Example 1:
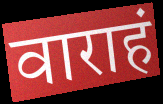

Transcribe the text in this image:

वाराहं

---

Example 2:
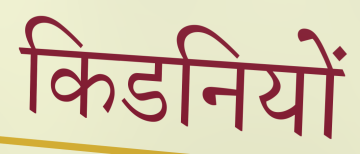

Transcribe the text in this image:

किडनियों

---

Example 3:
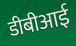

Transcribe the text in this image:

डीबीआई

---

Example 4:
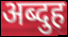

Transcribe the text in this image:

अब्दुह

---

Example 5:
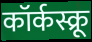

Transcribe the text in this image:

कॉर्कस्क्रू